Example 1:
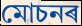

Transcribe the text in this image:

মোচনৰ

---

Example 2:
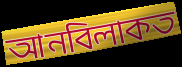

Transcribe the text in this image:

আনবিলাকত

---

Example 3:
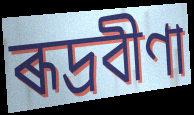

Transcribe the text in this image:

ৰূদ্ৰবীণা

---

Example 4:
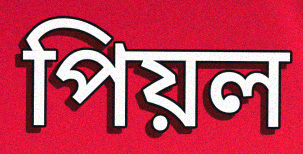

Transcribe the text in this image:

পিয়ল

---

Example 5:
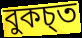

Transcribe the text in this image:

বুকচ্ত